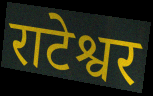
राटेश्वर